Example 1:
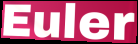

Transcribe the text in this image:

Euler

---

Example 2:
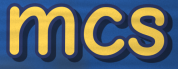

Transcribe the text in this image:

mcs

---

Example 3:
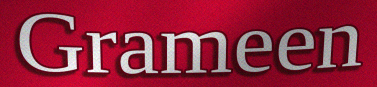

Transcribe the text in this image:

Grameen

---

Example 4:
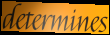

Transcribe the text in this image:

determines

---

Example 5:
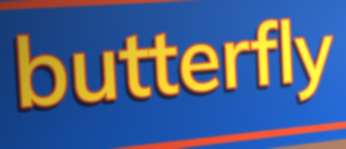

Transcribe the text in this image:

butterfly